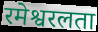
रमेश्वरलता